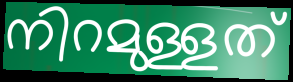
നിറമുള്ളത്